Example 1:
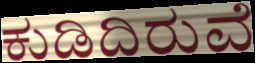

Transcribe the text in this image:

ಕುಡಿದಿರುವೆ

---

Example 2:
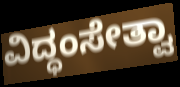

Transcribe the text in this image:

ವಿದ್ಧಂಸೇತ್ವಾ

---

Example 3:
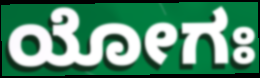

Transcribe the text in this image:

ಯೋಗಃ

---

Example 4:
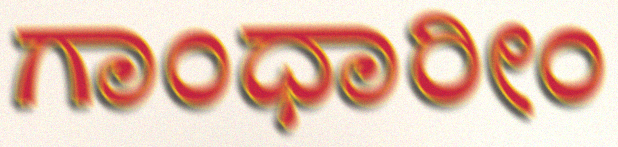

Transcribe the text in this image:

ಗಾಂಧಾರೀಂ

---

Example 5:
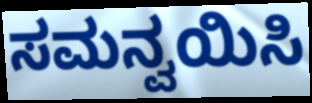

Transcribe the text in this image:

ಸಮನ್ವಯಿಸಿ